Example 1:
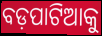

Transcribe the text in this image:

ବଡ଼ପାଟିଆକୁ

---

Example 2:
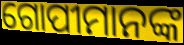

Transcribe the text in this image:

ଗୋପୀମାନଙ୍କ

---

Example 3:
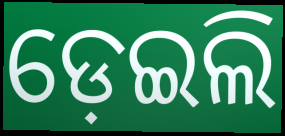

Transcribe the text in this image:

ଡ଼େଇଲି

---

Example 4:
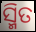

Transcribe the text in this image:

ସ୍ମିତ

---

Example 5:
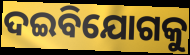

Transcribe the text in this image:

ଦଇବିଯୋଗକୁ